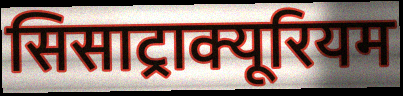
सिसाट्राक्यूरियम